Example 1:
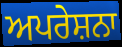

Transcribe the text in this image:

ਅਪਰੇਸ਼ਨਾ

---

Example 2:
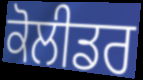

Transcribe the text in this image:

ਕੋਲੀਡਰ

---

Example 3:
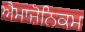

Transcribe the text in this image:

ਐਮਾਜ਼ੋਨਿਕਮ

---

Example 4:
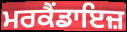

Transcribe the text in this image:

ਮਰਕੈਂਡਾਇਜ਼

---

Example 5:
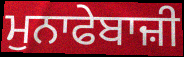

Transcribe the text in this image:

ਮੁਨਾਫੇਬਾਜ਼ੀ